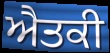
ਐਤਕੀ